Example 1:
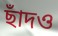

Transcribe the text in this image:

ছাঁদও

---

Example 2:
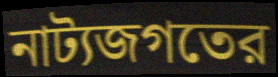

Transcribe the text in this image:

নাট্যজগতের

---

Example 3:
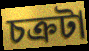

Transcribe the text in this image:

চক্রটা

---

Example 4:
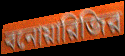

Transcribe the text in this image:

বনোয়ারিজির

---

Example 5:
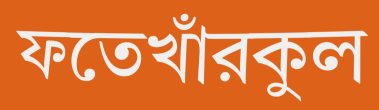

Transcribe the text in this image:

ফতেখাঁরকুল